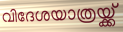
വിദേശയാത്രയ്ക്ക്